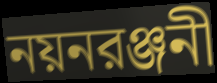
নয়নরঞ্জনী